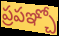
ప్రపఞ్చో